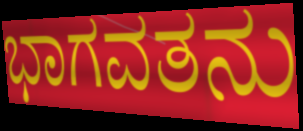
ಭಾಗವತನು